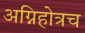
अग्निहोत्रच